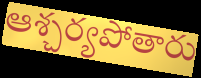
ఆశ్చర్యపోతారు